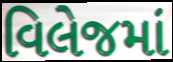
વિલેજમાં